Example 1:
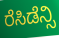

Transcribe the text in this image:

ರೆಸಿಡೆನ್ಸಿ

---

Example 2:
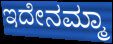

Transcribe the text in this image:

ಇದೇನಮ್ಮಾ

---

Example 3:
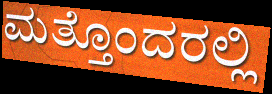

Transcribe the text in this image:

ಮತ್ತೊಂದರಲ್ಲಿ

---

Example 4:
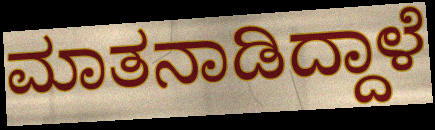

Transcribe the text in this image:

ಮಾತನಾಡಿದ್ದಾಳೆ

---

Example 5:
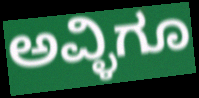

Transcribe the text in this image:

ಅವ್ಳಿಗೂ